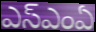
ఎస్ఎంఏ